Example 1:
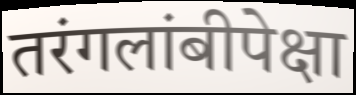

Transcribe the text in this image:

तरंगलांबीपेक्षा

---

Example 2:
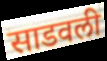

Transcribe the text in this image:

साडवली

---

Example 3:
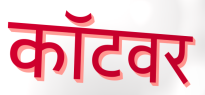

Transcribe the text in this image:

कॉटवर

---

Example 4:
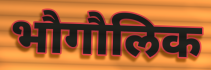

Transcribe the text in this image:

भौगौलिक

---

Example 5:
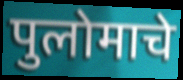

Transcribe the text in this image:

पुलोमाचे